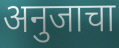
अनुजाचा